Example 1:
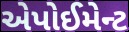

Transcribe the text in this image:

એપોઈમેન્ટ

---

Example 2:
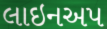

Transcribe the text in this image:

લાઇનઅપ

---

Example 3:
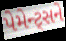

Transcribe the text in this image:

પેમેન્ટ્સને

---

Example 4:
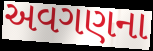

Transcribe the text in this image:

અવગણના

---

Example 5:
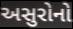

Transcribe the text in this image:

અસુરોનો